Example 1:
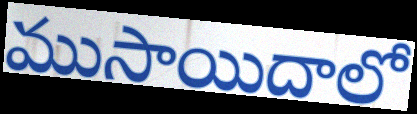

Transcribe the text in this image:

ముసాయిదాలో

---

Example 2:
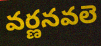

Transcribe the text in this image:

వర్ణనవలె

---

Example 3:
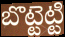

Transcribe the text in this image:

బొట్టెట్టి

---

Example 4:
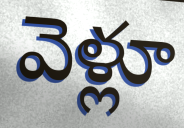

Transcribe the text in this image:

వెళ్లూ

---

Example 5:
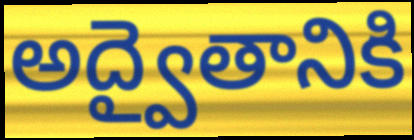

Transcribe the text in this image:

అద్వైతానికి